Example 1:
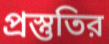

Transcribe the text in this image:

প্রস্তুতির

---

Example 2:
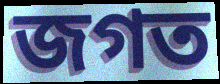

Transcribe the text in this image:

জগত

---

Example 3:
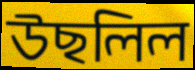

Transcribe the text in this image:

উছলিল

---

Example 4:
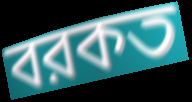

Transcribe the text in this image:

বরকত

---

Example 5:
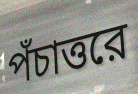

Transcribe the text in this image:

পঁচাত্তরে